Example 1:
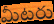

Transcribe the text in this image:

మీటరు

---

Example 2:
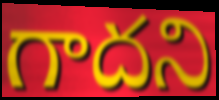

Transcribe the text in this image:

గాదని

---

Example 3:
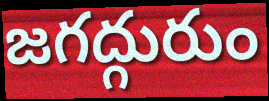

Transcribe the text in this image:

జగద్గురుం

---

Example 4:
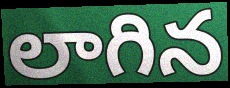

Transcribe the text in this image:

లాగిన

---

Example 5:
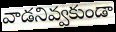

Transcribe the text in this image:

వాడనివ్వకుండా